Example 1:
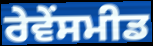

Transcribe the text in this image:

ਰੇਵੇਂਸਮੀਡ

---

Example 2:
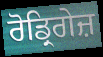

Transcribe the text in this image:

ਰੋਡ੍ਰਿਗੇਜ਼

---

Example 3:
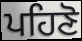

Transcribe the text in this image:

ਪਹਿਣੋ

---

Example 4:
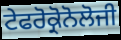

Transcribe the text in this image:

ਟੇਫਰੋਕ੍ਰੋਨੋਲੋਜੀ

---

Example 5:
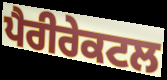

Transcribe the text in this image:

ਪੈਰੀਰੇਕਟਲ